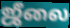
ஜீலை